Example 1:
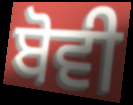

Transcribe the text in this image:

ਬੋਵੀ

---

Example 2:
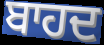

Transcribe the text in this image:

ਬਾਹਦ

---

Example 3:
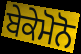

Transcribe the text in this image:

ਬੇਕੇਮੋਨੋ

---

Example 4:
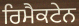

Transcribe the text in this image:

ਰਿਮੈਕਟੇਨ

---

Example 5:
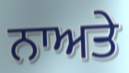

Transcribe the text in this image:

ਨਾਅਤੇ